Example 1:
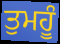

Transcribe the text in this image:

ਤੁਮਹੂੰ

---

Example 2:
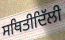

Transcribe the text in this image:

ਸਥਿਤੀਦਿੱਲੀ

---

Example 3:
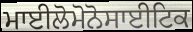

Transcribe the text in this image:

ਮਾਈਲੋਮੋਨੋਸਾਈਟਿਕ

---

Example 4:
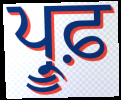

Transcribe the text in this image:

ਪ੍ਰੂਫ਼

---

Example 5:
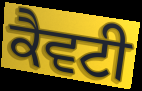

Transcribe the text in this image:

ਕੈਵਟੀ